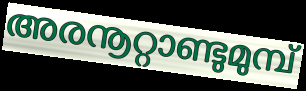
അരനൂറ്റാണ്ടുമുമ്പ്